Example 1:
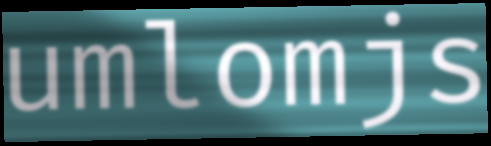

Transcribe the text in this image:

umlomjs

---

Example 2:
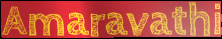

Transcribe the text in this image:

Amaravathi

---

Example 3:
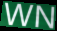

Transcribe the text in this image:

WN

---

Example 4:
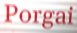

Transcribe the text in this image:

Porgai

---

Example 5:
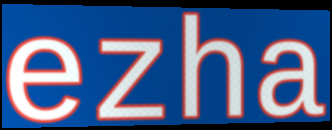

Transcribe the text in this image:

ezha